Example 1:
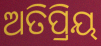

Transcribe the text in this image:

ଅତିପ୍ରିୟ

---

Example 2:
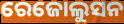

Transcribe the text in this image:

ରେଜୋଲୁସନ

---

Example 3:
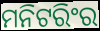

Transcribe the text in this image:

ମନିଟରିଂର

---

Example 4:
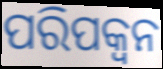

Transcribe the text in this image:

ପରିପକ୍ବନ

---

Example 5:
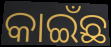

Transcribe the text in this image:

କାଇଁଛ